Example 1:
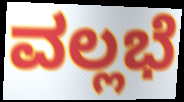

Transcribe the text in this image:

ವಲ್ಲಭೆ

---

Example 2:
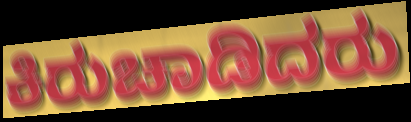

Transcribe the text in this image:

ಕಿರುಚಾಡಿದರು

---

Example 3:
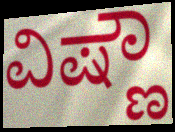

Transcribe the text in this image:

ವಿಷ್ಣೌ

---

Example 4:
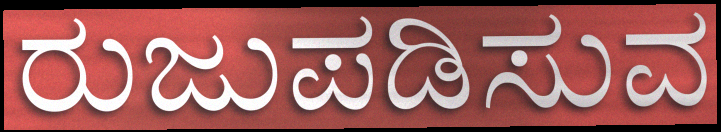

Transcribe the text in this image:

ರುಜುಪಡಿಸುವ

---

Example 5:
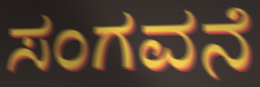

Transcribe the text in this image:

ಸಂಗವನೆ